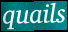
quails